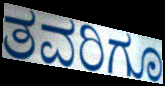
ತವರಿಗೂ